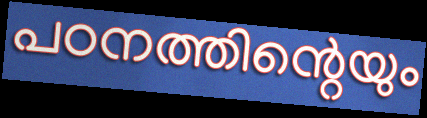
പഠനത്തിന്റെയും